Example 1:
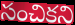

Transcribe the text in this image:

సంచికని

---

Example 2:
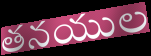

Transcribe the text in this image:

తనయుల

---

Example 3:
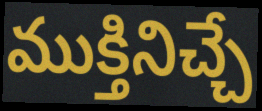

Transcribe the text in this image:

ముక్తినిచ్చే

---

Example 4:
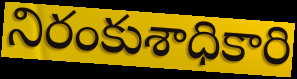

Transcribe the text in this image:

నిరంకుశాధికారి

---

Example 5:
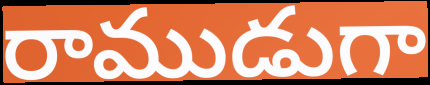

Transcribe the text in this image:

రాముడుగా